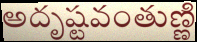
అదృష్టవంతుణ్ణి